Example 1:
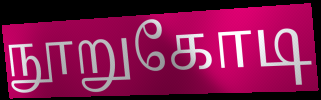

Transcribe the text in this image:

நூறுகோடி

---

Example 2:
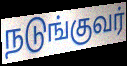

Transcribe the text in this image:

நடுங்குவர்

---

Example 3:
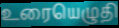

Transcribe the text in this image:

உரையெழுதி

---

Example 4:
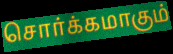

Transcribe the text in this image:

சொர்க்கமாகும்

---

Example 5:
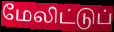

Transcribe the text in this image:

மேலிட்டுப்